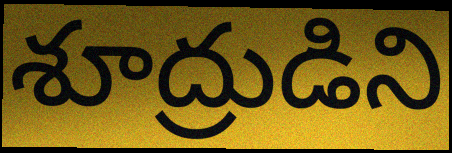
శూద్రుడిని